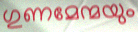
ഗുണമേന്മയും